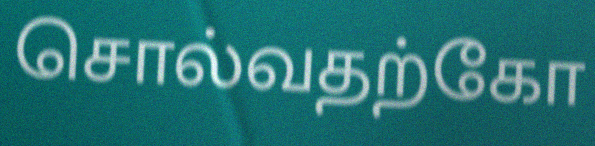
சொல்வதற்கோ